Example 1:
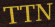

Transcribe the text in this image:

TTN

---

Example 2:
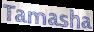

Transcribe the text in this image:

Tamasha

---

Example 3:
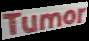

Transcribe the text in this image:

Tumor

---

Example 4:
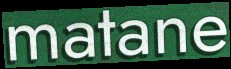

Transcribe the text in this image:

matane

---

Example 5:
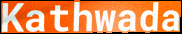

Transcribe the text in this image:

Kathwada